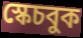
স্কেচবুক